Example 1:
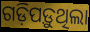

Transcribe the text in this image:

ଗଡ଼ିପଡ଼ୁଥିଲା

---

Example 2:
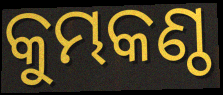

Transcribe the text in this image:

କୁମ୍ଭକଣ୍ଠ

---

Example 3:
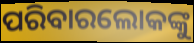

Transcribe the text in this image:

ପରିବାରଲୋକଙ୍କୁ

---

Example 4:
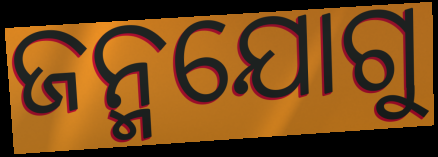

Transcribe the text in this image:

ଜନ୍ମଯୋଗୁ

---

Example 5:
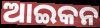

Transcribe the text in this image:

ଆଇକନ